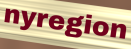
nyregion